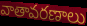
వాతావరణాలు